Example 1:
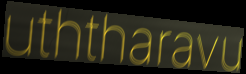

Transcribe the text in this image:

uththaravu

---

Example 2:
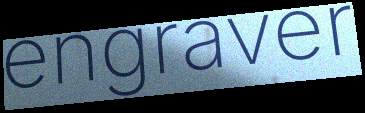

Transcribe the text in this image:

engraver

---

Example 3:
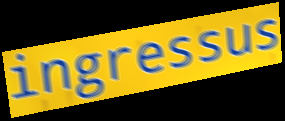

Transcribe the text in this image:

ingressus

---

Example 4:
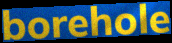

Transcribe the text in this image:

borehole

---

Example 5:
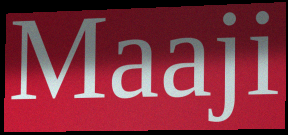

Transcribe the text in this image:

Maaji